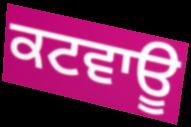
ਕਟਵਾਊ